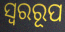
ସ୍ୱରରୂପ